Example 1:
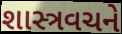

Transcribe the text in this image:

શાસ્ત્રવચને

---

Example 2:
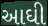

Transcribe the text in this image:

આઘી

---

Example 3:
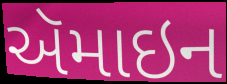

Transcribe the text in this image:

ઍમાઇન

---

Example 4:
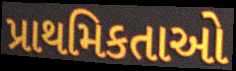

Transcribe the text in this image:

પ્રાથમિકતાઓ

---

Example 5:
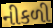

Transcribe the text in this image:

નીકળી